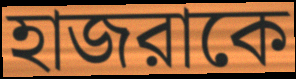
হাজরাকে